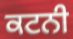
ਕਟਨੀ